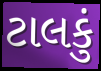
ટાલકું